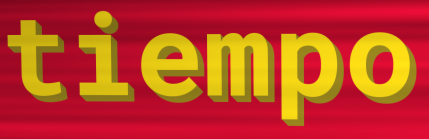
tiempo